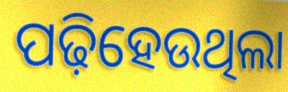
ପଢ଼ିହେଉଥିଲା